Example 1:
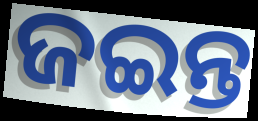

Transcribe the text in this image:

ଜଇନ୍ତ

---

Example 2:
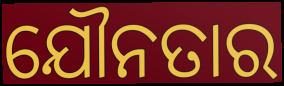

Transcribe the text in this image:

ଯୌନତାର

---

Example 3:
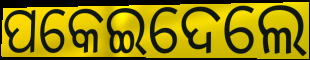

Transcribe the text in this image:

ପକେଇଦେଲେ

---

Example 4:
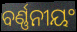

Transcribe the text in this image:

ବର୍ଣ୍ଣନୀୟଂ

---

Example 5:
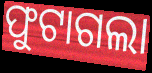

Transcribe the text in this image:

ଫୁଟାଗଲା